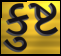
કુષ્ટ